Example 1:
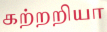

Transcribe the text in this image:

கற்றறியா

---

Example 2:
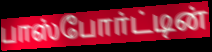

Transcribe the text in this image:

பாஸ்போர்ட்டின்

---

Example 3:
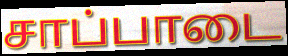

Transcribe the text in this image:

சாப்பாடை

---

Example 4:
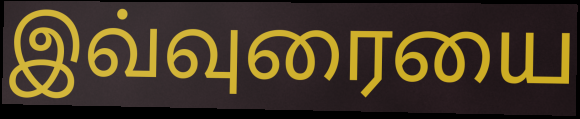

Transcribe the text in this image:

இவ்வுரையை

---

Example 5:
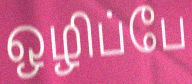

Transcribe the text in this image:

ஒழிப்பே